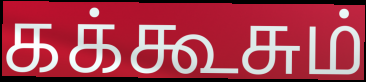
கக்கூசும்